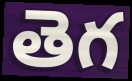
తెగ